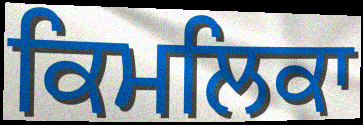
ਕਿਮਲਿਕਾ